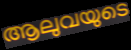
ആലുവയുടെ